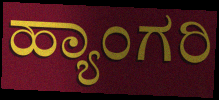
ಹ್ಯಾಂಗರಿ